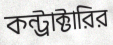
কন্ট্রাক্টারির